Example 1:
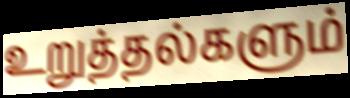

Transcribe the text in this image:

உறுத்தல்களும்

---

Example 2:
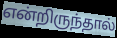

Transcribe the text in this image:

என்றிருந்தால்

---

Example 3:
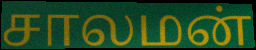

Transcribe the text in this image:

சாலமன்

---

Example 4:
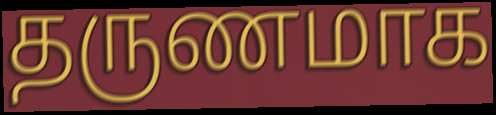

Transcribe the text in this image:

தருணமாக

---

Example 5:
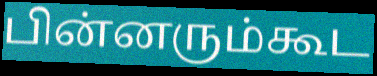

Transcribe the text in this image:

பின்னரும்கூட